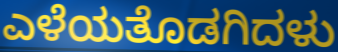
ಎಳೆಯತೊಡಗಿದಳು